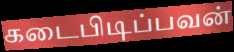
கடைபிடிப்பவன்